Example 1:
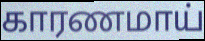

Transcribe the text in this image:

காரணமாய்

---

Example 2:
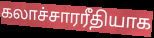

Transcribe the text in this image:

கலாச்சாரரீதியாக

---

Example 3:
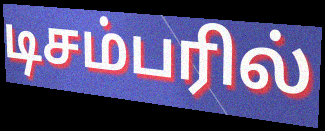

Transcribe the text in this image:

டிசம்பரில்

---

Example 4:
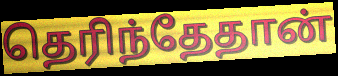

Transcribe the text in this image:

தெரிந்தேதான்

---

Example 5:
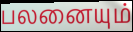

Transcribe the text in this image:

பலனையும்